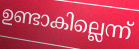
ഉണ്ടാകില്ലെന്ന്